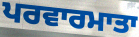
ਪਰਵਾਰਮਾਤਾ